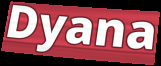
Dyana